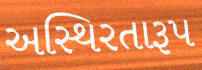
અસ્થિરતારૂપ